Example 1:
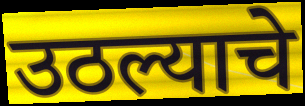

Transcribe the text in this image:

उठल्याचे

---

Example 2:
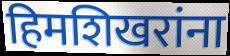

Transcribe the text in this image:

हिमशिखरांना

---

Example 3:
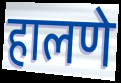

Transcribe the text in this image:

हालणे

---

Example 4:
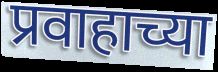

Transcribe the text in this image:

प्रवाहाच्या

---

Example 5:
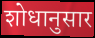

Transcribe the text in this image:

शोधानुसार